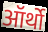
ऑर्थो